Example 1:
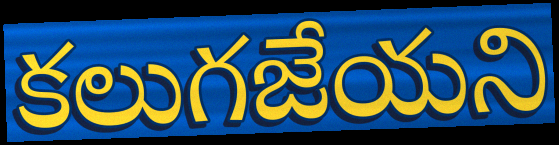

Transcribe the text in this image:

కలుగజేయని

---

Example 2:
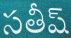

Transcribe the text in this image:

సతీష్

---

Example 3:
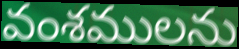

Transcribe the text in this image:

వంశములను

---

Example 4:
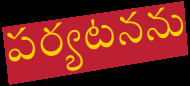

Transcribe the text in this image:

పర్యటనను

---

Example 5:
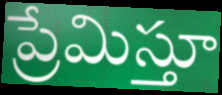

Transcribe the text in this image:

ప్రేమిస్తూ